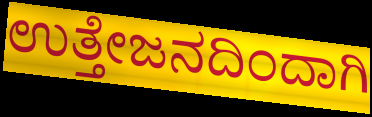
ಉತ್ತೇಜನದಿಂದಾಗಿ